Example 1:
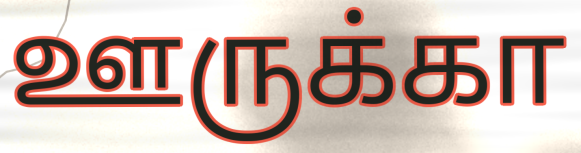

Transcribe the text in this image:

ஊருக்கா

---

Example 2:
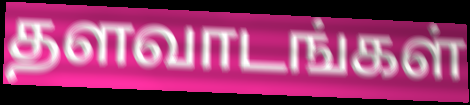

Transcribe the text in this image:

தளவாடங்கள்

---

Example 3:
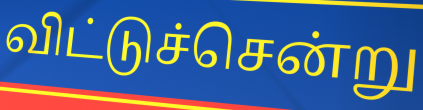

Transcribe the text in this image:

விட்டுச்சென்று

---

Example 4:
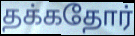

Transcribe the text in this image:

தக்கதோர்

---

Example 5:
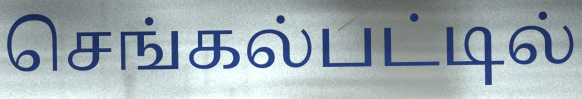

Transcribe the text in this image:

செங்கல்பட்டில்